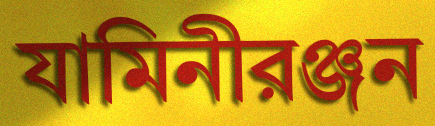
যামিনীরঞ্জন